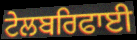
ਟੇਲਬਰਿਫਾਈ